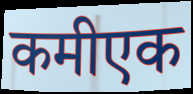
कमीएक